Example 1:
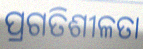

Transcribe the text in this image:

ପ୍ରଗତିଶୀଳତା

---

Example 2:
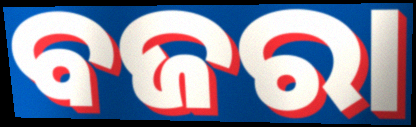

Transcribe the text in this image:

ବଜରା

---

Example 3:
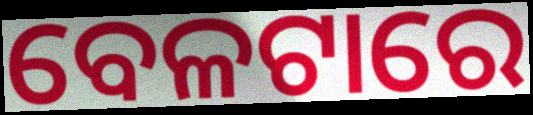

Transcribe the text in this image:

ବେଳଟାରେ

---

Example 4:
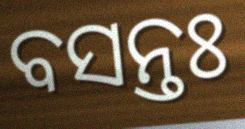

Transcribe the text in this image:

ବସନ୍ତଃ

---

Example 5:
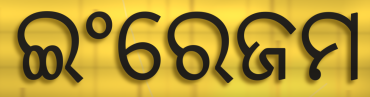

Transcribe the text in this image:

ଇଂରେଜମ